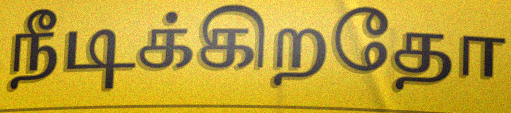
நீடிக்கிறதோ